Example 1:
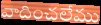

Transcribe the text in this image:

వాదించలేము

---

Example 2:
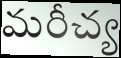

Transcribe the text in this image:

మరీచ్య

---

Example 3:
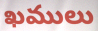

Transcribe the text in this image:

ఖములు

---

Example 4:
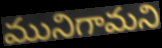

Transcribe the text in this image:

మునిగామని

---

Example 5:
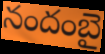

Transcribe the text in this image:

నందంబై